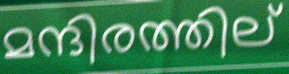
മന്ദിരത്തില്